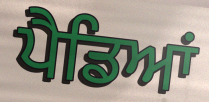
ਪੈਡਿਆਂ